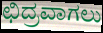
ಛಿದ್ರವಾಗಲು